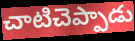
చాటిచెప్పాడు